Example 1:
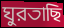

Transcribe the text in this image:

ঘুরতাছি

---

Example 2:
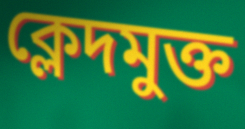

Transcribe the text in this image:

ক্লেদমুক্ত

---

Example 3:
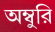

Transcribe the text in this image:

অম্বুরি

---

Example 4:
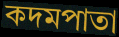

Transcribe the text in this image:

কদমপাতা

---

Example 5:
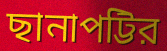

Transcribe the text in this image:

ছানাপট্টির